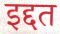
इद्दत